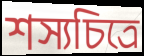
শস্যচিত্রে